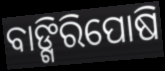
ବାଙ୍ଗିରିପୋଷି